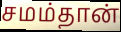
சமம்தான்